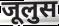
जूलुस